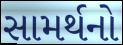
સામર્થનો